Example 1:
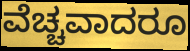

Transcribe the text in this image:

ವೆಚ್ಚವಾದರೂ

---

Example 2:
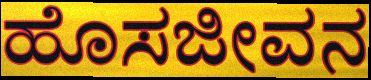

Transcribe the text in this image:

ಹೊಸಜೀವನ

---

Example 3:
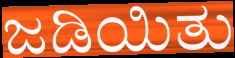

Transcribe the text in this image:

ಜಡಿಯಿತು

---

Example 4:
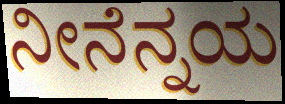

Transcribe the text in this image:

ನೀನೆನ್ನಯ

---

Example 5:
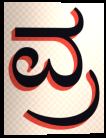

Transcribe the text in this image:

ವ್ರ